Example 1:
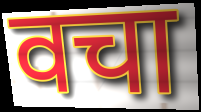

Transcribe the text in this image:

वचा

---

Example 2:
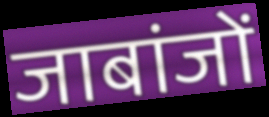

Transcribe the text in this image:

जाबांजों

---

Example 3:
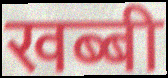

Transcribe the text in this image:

खब्बी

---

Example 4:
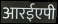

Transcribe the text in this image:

आरईएपी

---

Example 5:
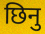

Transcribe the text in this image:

छिनु